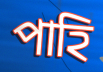
পাহি